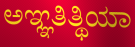
ಅಞ್ಞತಿತ್ಥಿಯಾ